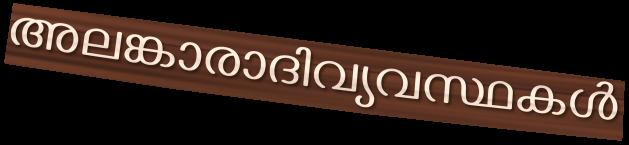
അലങ്കാരാദിവ്യവസ്ഥകൾ